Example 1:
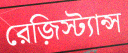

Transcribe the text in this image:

রেজ়িস্ট্যান্স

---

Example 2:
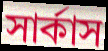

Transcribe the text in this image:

সার্কাস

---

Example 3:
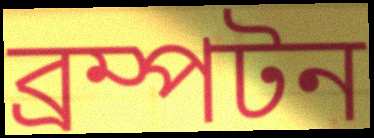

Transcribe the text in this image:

ব্রম্পটন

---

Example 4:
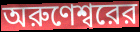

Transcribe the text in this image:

অরুণেশ্বরের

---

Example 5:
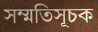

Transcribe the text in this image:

সম্মতিসূচক